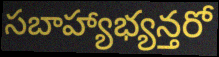
సబాహ్యాభ్యన్తరో